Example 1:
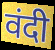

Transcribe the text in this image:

वंदी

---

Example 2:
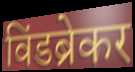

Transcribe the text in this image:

विंडब्रेकर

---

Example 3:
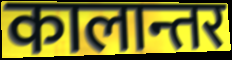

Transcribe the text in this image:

कालान्तर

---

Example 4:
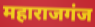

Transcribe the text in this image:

महाराजगंज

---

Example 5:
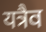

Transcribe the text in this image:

यत्रैव